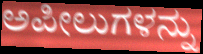
ಅಪೀಲುಗಳನ್ನು